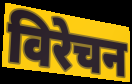
विरेचन